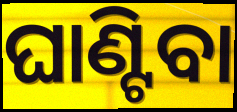
ଘାଣ୍ଟିବା